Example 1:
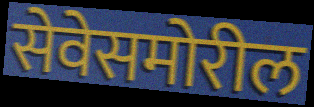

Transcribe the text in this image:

सेवेसमोरील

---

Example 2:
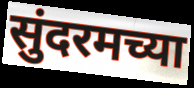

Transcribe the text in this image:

सुंदरमच्या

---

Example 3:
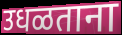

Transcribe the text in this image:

उधळताना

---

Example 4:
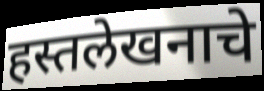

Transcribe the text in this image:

हस्तलेखनाचे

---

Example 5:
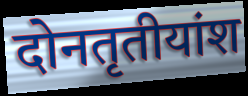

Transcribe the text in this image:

दोनतृतीयांश